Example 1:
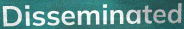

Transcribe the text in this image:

Disseminated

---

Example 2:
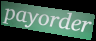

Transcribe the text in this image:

payorder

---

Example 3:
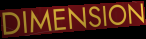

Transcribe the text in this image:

DIMENSION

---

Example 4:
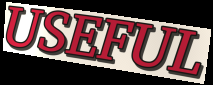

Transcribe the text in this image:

USEFUL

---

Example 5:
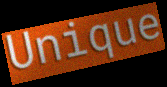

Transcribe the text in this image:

Unique